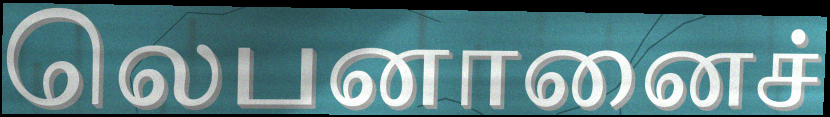
லெபனானைச்